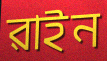
ৱাইন